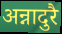
अन्नादुरै